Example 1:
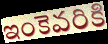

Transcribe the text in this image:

ఇంకెవరికి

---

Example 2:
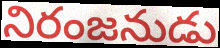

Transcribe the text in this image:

నిరంజనుడు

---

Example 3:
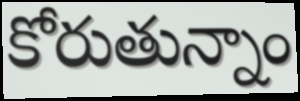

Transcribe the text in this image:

కోరుతున్నాం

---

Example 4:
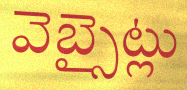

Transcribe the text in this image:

వెబ్సైట్లు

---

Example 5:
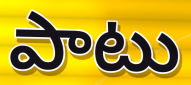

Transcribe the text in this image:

పాటు